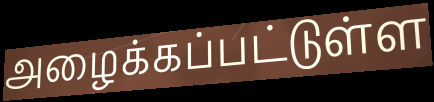
அழைக்கப்பட்டுள்ள